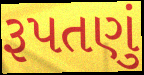
રૂપતણું